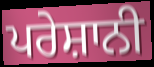
ਪਰੇਸ਼ਾਨੀ